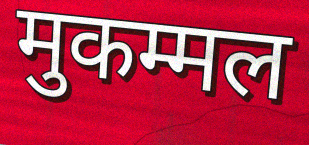
मुकम्मल